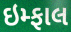
ઇમ્ફાલ